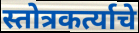
स्तोत्रकर्त्याचे